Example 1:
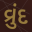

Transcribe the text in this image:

વ્રુંદ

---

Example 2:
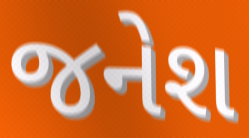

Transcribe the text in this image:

જનેશ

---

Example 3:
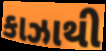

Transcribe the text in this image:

કાઝાથી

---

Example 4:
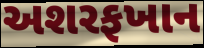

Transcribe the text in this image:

અશરફખાન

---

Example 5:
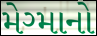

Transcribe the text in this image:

મેગ્માનો